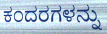
ಕಂದರಗಳನ್ನು